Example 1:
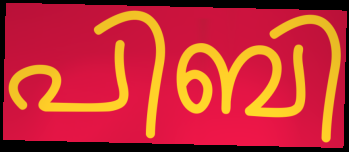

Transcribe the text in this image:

പിബി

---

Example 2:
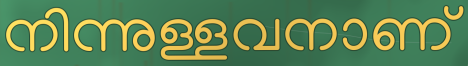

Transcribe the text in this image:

നിന്നുള്ളവനാണ്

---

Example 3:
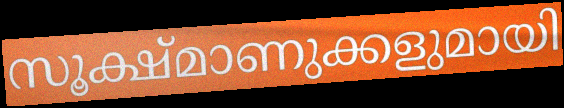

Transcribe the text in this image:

സൂക്ഷ്മാണുക്കളുമായി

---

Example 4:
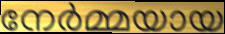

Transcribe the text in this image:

നേർമ്മയായ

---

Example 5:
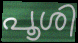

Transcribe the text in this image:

പൂശി